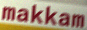
makkam